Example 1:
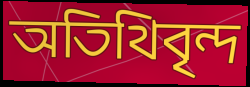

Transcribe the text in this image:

অতিথিবৃন্দ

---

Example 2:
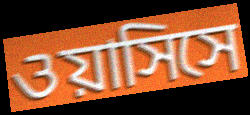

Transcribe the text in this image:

ওয়াসিসে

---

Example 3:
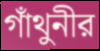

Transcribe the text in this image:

গাঁথুনীর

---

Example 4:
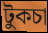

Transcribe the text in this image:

টুকচা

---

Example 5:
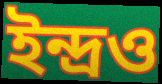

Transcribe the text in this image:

ইন্দ্রও